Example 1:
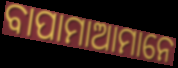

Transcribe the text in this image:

ବାପାମାଆମାନେ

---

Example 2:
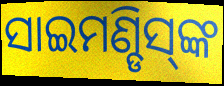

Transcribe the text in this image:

ସାଇମଣ୍ଡିସ୍‍ଙ୍କ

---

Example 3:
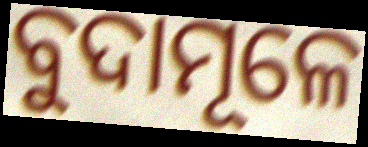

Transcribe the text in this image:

ବୁଦାମୂଳେ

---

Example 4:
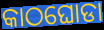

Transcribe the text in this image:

କାଠଘୋଡା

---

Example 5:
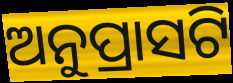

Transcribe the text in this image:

ଅନୁପ୍ରାସଟି